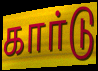
கார்டு